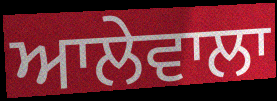
ਆਲੇਵਾਲਾ